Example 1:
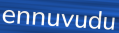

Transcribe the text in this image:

ennuvudu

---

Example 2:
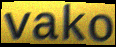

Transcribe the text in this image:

vako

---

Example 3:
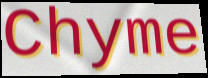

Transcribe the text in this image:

Chyme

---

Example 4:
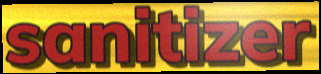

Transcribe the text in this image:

sanitizer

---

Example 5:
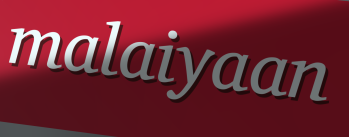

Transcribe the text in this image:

malaiyaan